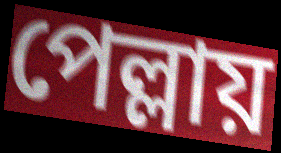
পেল্লায়